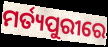
ମର୍ତ୍ୟପୁରୀରେ